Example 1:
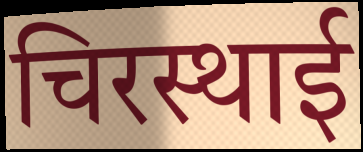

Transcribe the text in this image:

चिरस्थाई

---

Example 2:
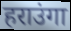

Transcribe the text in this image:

हराउंगा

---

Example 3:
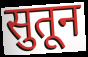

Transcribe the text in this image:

सुतून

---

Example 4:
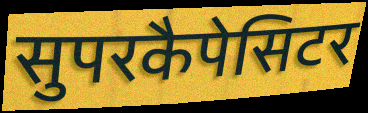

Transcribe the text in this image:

सुपरकैपेसिटर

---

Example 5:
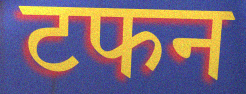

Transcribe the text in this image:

टफन